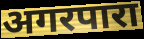
अगरपारा